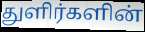
துளிர்களின்